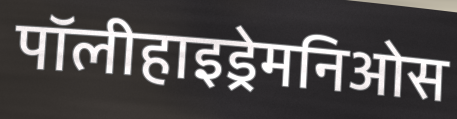
पॉलीहाइड्रेमनिओस